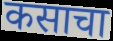
कसाचा